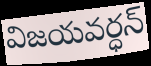
విజయవర్ధన్